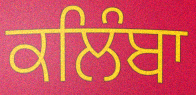
ਕਲਿੰਬਾ